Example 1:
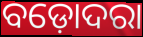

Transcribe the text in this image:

ବଡ଼ୋଦରା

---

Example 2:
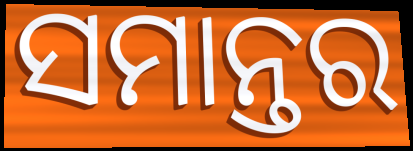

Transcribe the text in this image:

ସମାନ୍ତର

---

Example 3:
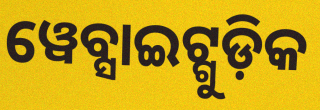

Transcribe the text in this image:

ୱେବ୍ସାଇଟ୍ଗୁଡ଼ିକ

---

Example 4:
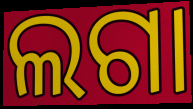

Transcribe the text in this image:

ଲଗା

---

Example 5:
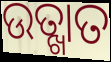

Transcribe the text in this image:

ଉତ୍ଖାତ